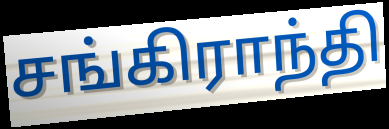
சங்கிராந்தி